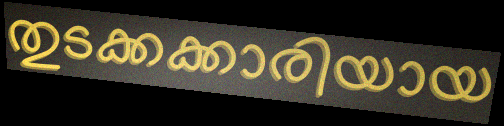
തുടക്കക്കാരിയായ